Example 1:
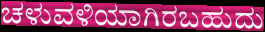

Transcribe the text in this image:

ಚಳುವಳಿಯಾಗಿರಬಹುದು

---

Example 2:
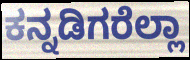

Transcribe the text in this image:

ಕನ್ನಡಿಗರೆಲ್ಲಾ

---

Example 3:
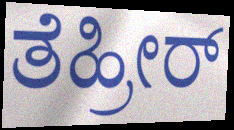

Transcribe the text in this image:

ತೆಹ್ರೀರ್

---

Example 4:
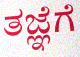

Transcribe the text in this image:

ತಜ್ಞೆಗೆ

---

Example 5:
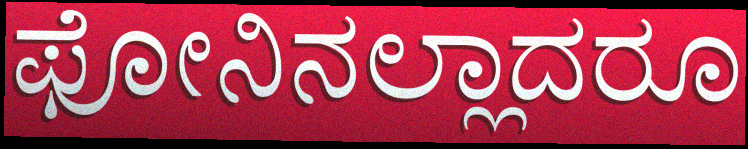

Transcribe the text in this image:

ಫೋನಿನಲ್ಲಾದರೂ